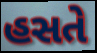
હસતે